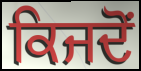
ਕਿਜਦੋਂ